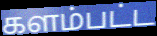
களம்பட்ட